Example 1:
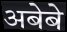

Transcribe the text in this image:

अबेबे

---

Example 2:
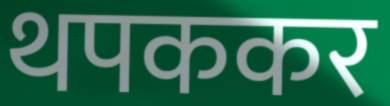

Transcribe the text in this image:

थपककर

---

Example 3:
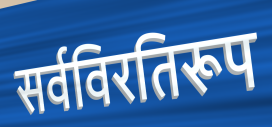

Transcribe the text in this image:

सर्वविरतिरूप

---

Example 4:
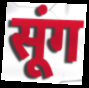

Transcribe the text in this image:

सूंग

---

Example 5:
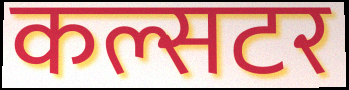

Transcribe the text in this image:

कल्सटर